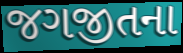
જગજીતના